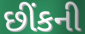
છીંકની